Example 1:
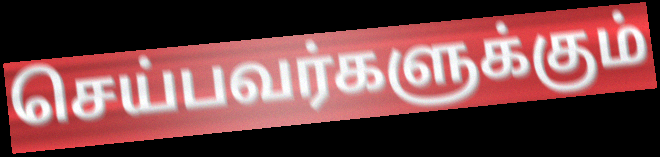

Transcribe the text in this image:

செய்பவர்களுக்கும்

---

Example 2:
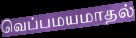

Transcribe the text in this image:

வெப்பமயமாதல்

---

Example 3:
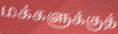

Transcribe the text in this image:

மக்களுக்குத்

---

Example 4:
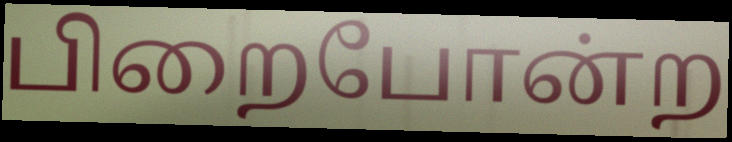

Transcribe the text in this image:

பிறைபோன்ற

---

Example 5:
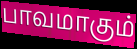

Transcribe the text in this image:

பாவமாகும்